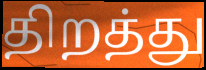
திறத்து